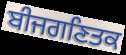
ਬੀਜਗਣਿਤਕ